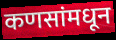
कणसांमधून